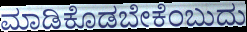
ಮಾಡಿಕೊಡಬೇಕೆಂಬುದು